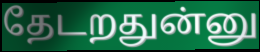
தேடறதுன்னு